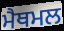
ਮੈਥਮਲ